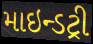
માઇન્ડટ્રી